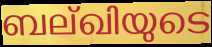
ബല്ഖിയുടെ